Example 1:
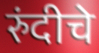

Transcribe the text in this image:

रुंदीचे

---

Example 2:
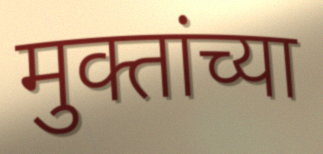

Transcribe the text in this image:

मुक्तांच्या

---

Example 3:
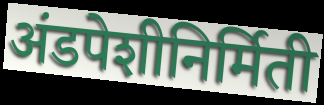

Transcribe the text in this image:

अंडपेशीनिर्मिती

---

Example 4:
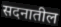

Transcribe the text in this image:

सदनातील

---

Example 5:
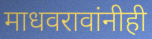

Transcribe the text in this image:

माधवरावांनीही